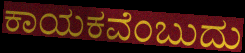
ಕಾಯಕವೆಂಬುದು